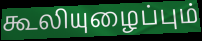
கூலியுழைப்பும்